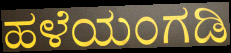
ಹಳೆಯಂಗಡಿ